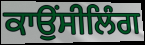
ਕਾਉਂਸੀਲਿੰਗ